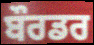
ਬੌਰਡਰ